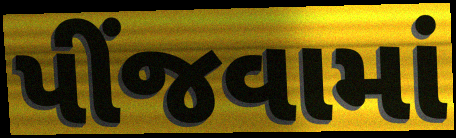
પીંજવામાં